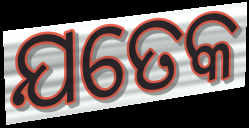
ଯତେକ